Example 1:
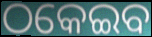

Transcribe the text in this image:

ଠକେଇବ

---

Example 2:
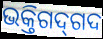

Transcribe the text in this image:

ଭକ୍ତିଗଦ୍‌ଗଦ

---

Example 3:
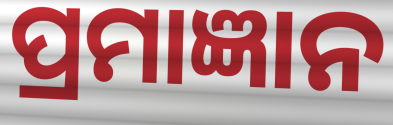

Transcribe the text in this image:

ପ୍ରମାଜ୍ଞାନ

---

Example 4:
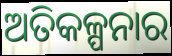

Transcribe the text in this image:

ଅତିକଳ୍ପନାର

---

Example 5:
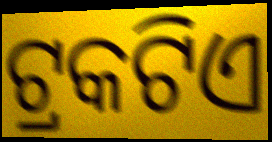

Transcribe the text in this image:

ଟ୍ରକଟିଏ